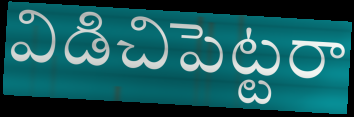
విడిచిపెట్టరా